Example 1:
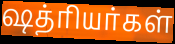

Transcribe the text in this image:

ஷத்ரியர்கள்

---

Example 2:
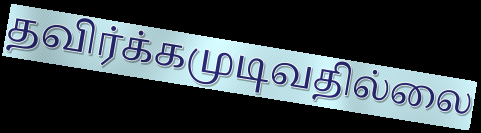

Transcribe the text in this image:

தவிர்க்கமுடிவதில்லை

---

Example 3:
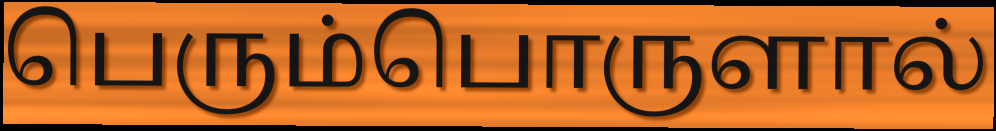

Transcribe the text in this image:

பெரும்பொருளால்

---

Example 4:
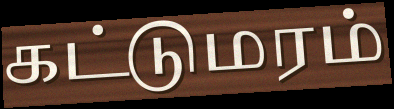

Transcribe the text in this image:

கட்டுமரம்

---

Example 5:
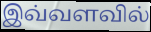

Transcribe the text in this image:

இவ்வளவில்